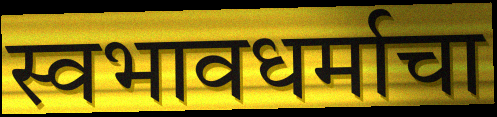
स्वभावधर्माचा